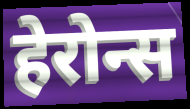
हेरोन्स